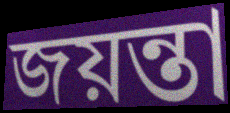
জয়ন্তা